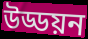
উড্ডয়ন